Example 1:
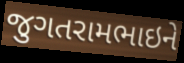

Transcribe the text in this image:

જુગતરામભાઇને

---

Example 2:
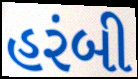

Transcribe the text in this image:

હરંબી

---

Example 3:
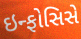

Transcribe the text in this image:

ઇન્ફોસિસે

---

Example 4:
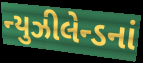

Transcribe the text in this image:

ન્યુઝીલેન્ડનાં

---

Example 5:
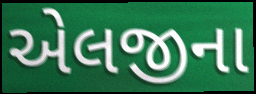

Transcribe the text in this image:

એલજીના